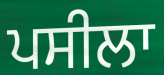
ਪਸੀਲਾ